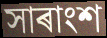
সাৰাংশ